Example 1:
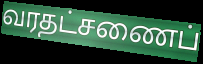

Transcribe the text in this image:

வரதட்சணைப்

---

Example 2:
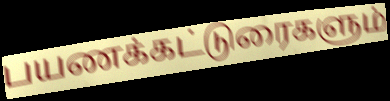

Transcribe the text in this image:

பயணக்கட்டுரைகளும்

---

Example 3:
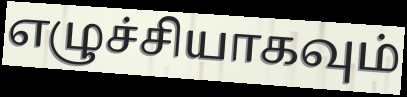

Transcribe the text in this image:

எழுச்சியாகவும்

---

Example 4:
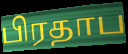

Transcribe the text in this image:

பிரதாப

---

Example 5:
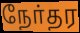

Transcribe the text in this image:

நேர்தர